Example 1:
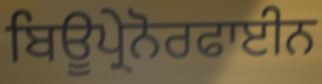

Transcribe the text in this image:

ਬਿਊਪ੍ਰੇਨੋਰਫਾਈਨ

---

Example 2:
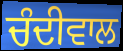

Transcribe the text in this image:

ਚੰਦੀਵਾਲ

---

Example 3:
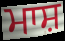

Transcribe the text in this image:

ਮਾਸ਼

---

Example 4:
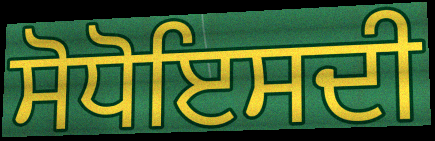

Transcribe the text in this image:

ਸੋਧੋਇਸਦੀ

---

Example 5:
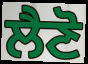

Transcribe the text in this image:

ਲੈਣੋ